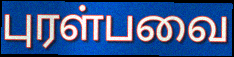
புரள்பவை